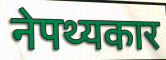
नेपथ्यकार